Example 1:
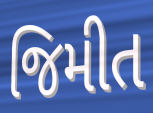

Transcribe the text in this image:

જિમીત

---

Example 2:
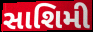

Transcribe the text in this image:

સાશિમી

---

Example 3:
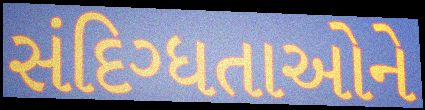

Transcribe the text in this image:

સંદિગ્ધતાઓને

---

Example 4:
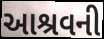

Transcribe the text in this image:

આશ્રવની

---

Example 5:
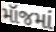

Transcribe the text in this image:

મૉજમાં